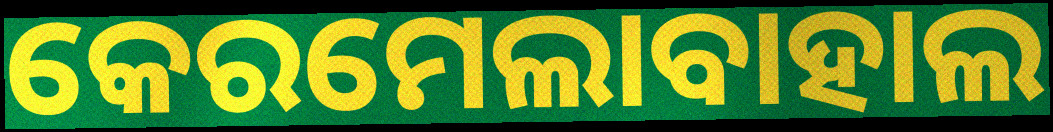
କେରମେଲାବାହାଲ